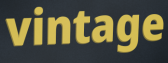
vintage